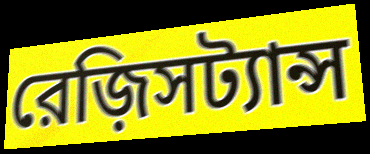
রেজ়িসট্যান্স